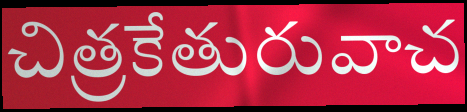
చిత్రకేతురువాచ